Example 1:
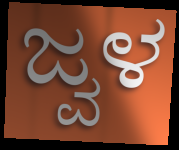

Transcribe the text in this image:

ಜ್ವಳ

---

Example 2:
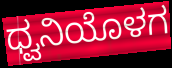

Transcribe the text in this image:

ಧ್ವನಿಯೊಳಗ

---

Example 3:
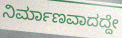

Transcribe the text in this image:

ನಿರ್ಮಾಣವಾದದ್ದೇ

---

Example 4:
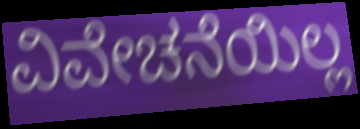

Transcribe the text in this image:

ವಿವೇಚನೆಯಿಲ್ಲ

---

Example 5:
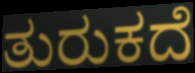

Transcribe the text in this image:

ತುರುಕದೆ